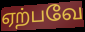
ஏற்பவே